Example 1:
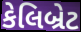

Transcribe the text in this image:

કેલિબ્રેટ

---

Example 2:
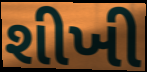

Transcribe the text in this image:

શીખી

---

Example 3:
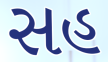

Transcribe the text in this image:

સહ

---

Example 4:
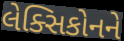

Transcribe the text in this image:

લેક્સિકોનને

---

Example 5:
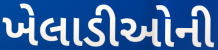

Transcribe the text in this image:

ખેલાડીઓની